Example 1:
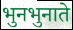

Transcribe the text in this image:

भुनभुनाते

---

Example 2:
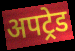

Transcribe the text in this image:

अपट्रेड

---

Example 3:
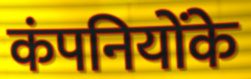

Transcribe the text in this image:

कंपनियोंके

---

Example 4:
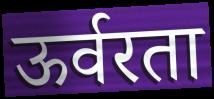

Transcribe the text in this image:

ऊर्वरता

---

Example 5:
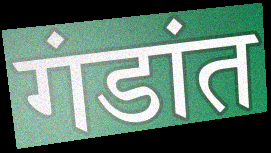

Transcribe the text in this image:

गंडांत